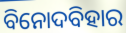
ବିନୋଦବିହାର